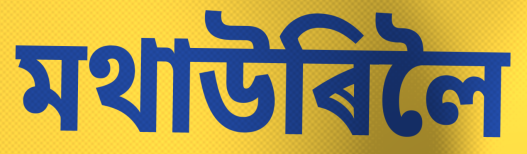
মথাউৰিলৈ